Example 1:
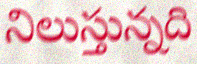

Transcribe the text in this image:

నిలుస్తున్నది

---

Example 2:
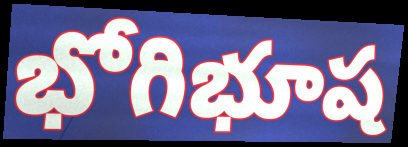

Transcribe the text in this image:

భోగిభూష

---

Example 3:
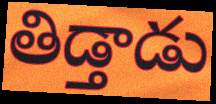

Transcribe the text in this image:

తిడ్తాడు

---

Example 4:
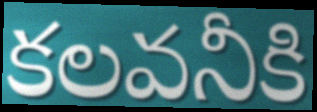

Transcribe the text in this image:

కలవనీకి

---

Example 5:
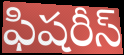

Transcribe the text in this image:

ఫిషరీస్